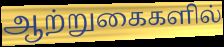
ஆற்றுகைகளில்